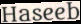
Haseeb